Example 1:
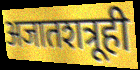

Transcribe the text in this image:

अजातशत्रूही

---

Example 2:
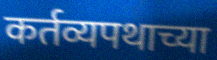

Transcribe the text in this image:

कर्तव्यपथाच्या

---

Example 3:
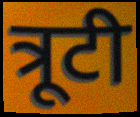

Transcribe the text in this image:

त्रूटी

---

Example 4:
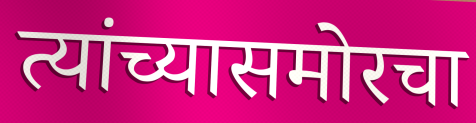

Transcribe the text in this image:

त्यांच्यासमोरचा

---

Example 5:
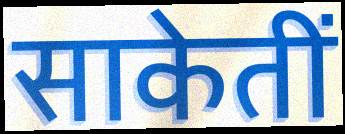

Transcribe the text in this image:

साकेतीं